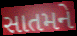
સાતમને